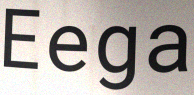
Eega